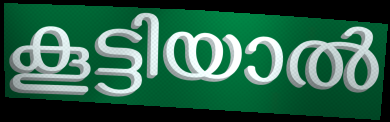
കൂട്ടിയാൽ